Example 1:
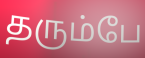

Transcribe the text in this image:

தரும்பே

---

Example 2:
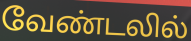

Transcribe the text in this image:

வேண்டலில்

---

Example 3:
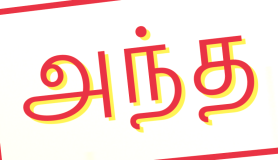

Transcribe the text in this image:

அந்த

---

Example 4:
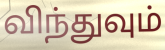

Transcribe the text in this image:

விந்துவும்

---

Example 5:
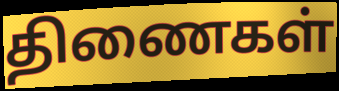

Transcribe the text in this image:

திணைகள்